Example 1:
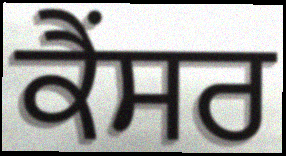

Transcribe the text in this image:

ਕੈਂਸਰ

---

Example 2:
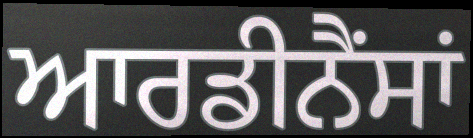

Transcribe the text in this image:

ਆਰਡੀਨੈਂਸਾਂ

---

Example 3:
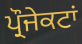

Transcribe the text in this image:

ਪ੍ਰੌਜੇਕਟਾਂ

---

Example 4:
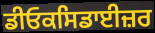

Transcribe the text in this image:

ਡੀਓਕਸਿਡਾਈਜ਼ਰ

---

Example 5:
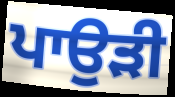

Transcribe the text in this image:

ਪਾਉੜੀ